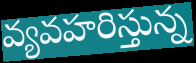
వ్యవహరిస్తున్న